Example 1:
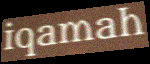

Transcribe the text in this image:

iqamah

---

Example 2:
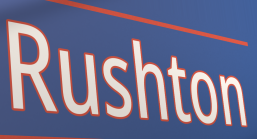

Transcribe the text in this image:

Rushton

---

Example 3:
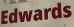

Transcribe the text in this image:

Edwards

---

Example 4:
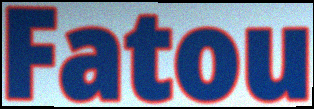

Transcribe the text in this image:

Fatou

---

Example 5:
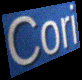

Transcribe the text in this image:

Cori